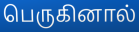
பெருகினால்